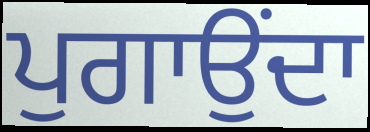
ਪੁਗਾਉਂਦਾ